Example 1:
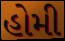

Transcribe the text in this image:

હોમી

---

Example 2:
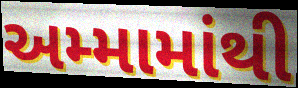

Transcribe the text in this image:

અમ્મામાંથી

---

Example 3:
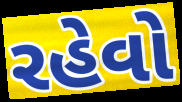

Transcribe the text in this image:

રહેવો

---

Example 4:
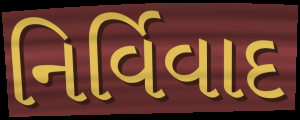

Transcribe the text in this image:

નિર્વિવાદ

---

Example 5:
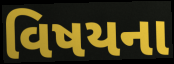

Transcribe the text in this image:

વિષયના